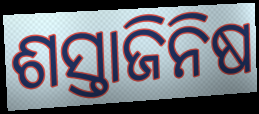
ଶସ୍ତାଜିନିଷ